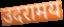
उदरामय